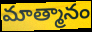
మాత్మానం